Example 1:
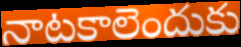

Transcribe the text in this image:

నాటకాలెందుకు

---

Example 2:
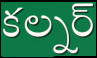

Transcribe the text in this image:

కల్నర్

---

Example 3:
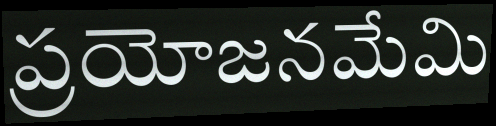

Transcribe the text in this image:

ప్రయోజనమేమి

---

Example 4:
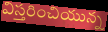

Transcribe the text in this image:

విస్తరించియున్న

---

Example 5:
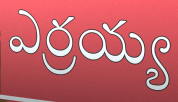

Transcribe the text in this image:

ఎర్రయ్య